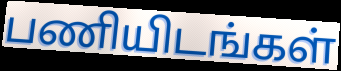
பணியிடங்கள்